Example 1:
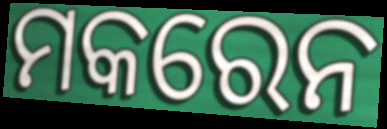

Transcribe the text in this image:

ମକରେନ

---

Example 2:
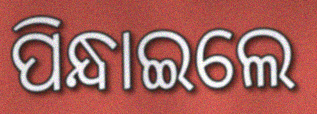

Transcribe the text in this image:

ପିନ୍ଧାଇଲେ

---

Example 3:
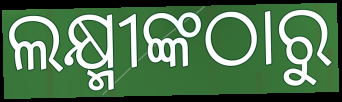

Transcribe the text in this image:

ଲକ୍ଷ୍ମୀଙ୍କଠାରୁ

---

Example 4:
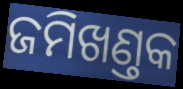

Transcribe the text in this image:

ଜମିଖଣ୍ତକ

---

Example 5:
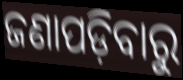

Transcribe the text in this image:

ଜଣାପଡ଼ିବାରୁ